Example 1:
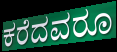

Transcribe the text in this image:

ಕರೆದವರೂ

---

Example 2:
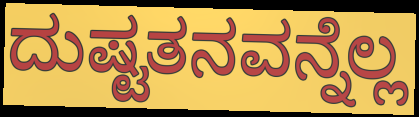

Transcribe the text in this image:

ದುಷ್ಟತನವನ್ನೆಲ್ಲ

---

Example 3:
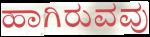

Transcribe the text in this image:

ಹಾಗಿರುವವು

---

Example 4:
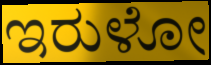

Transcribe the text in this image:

ಇರುಳೋ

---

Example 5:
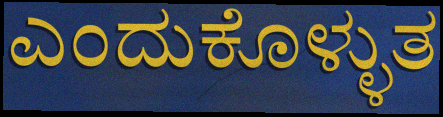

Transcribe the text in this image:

ಎಂದುಕೊಳ್ಳುತ